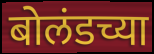
बोलंडच्या